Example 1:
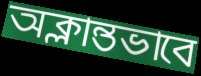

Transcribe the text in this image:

অক্লান্তভাবে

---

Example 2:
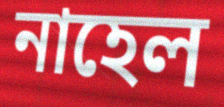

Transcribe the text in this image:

নাহেল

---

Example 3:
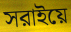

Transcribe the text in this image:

সরাইয়ে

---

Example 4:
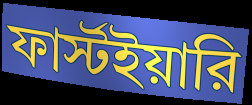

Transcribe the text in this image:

ফার্স্টইয়ারি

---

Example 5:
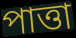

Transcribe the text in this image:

পাত্তা